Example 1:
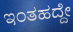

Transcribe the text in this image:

ಇಂತಹದ್ದೇ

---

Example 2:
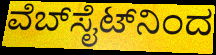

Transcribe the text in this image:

ವೆಬ್‍ಸೈಟ್‍ನಿಂದ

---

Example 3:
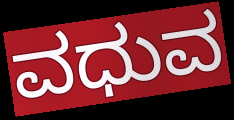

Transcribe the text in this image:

ವಧುವ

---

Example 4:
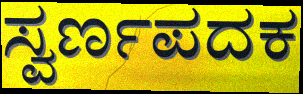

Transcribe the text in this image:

ಸ್ವರ್ಣಪದಕ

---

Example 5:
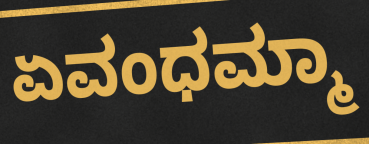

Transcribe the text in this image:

ಏವಂಧಮ್ಮಾ